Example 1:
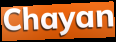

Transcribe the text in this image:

Chayan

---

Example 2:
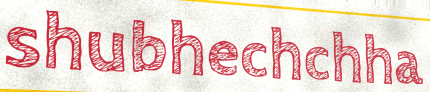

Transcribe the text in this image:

shubhechchha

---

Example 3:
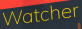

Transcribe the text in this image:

Watcher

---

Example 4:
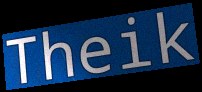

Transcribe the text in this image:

Theik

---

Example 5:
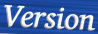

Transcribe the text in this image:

Version